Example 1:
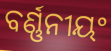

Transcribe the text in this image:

ବର୍ଣ୍ଣନୀୟଂ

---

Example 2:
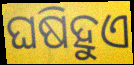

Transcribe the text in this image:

ଘଷିହୁଏ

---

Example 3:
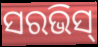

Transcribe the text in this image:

ସରଭିସ୍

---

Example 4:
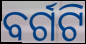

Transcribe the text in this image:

ବର୍ଗଟି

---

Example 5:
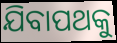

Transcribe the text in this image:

ଯିବାପଥକୁ